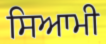
ਸਿਆਮੀ